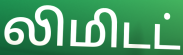
லிமிடட்